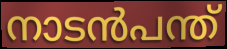
നാടൻപന്ത്